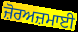
ਜ਼ੋਰਅਜ਼ਮਾਈ